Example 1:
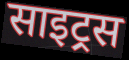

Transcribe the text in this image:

साइट्रस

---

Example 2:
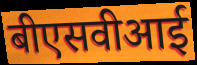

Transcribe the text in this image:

बीएसवीआई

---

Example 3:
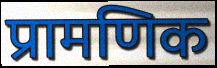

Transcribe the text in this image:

प्रामणिक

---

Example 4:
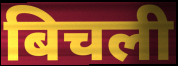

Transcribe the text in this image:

बिचली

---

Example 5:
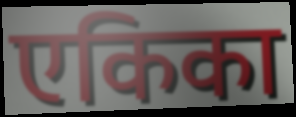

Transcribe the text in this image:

एकिका